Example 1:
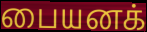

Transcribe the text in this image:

பையனக்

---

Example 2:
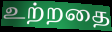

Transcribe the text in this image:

உற்றதை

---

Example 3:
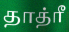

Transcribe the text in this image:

தாத்ரீ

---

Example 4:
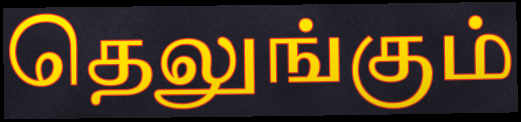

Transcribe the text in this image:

தெலுங்கும்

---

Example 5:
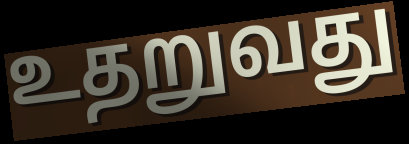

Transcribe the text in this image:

உதறுவது